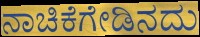
ನಾಚಿಕೆಗೇಡಿನದು